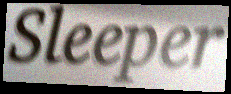
Sleeper